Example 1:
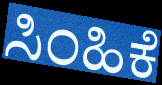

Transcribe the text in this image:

ಸಿಂಹಿಕೆ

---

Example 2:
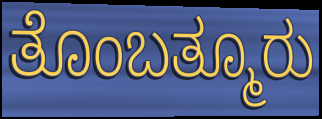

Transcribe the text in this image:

ತೊಂಬತ್ಮೂರು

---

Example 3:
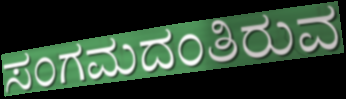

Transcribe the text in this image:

ಸಂಗಮದಂತಿರುವ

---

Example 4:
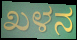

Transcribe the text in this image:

ಖಳನ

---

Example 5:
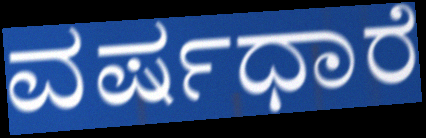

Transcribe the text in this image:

ವರ್ಷಧಾರೆ